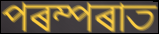
পৰম্পৰাত